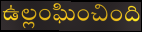
ఉల్లంఘించింది